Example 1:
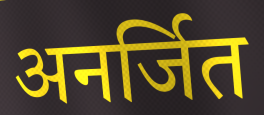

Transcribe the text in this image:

अनर्जित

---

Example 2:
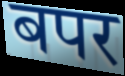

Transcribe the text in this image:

बपर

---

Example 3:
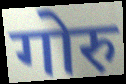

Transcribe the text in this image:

गोरु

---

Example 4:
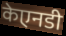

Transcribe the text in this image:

केएनडी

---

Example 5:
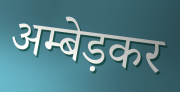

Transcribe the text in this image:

अम्बेड़कर